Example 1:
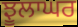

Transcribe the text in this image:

ਝੂਲਾਘਰ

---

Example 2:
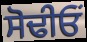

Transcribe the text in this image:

ਸੋਢੀਓਂ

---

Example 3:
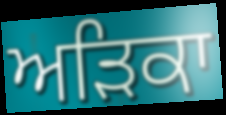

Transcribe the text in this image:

ਅੜਿਕਾ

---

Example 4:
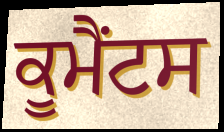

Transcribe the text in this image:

ਕੂਮੈਂਟਸ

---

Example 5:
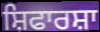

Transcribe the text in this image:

ਸ਼ਿਫਾਰਸ਼ਾ